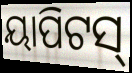
ୟାପିଟସ୍